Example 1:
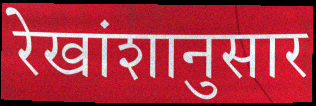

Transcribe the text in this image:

रेखांशानुसार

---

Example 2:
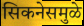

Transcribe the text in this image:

सिकनेसमुळे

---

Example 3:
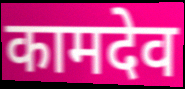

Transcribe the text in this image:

कामदेव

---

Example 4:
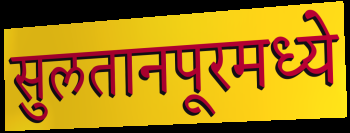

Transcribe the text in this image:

सुलतानपूरमध्ये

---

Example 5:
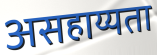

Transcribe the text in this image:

असहाय्यता